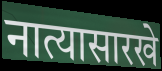
नात्यासारखे